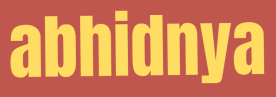
abhidnya